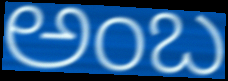
ಅಂಬ